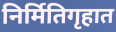
निर्मितिगृहात